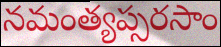
నమంత్యప్సరసాం